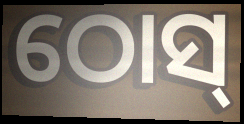
ଠୋସ୍